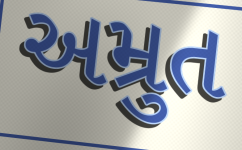
અમ્રુત